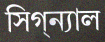
সিগ্‌ন্যাল